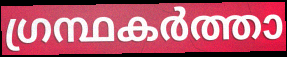
ഗ്രന്ഥകർത്താ